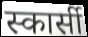
स्कार्सी